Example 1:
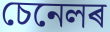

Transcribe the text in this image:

চেনেলৰ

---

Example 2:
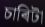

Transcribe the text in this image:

চাৰিটা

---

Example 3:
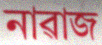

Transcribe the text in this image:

নাৱাজ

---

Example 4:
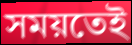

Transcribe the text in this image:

সময়তেই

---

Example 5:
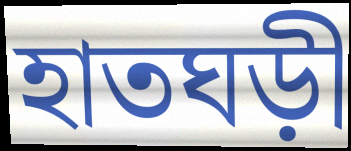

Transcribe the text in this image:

হাতঘড়ী